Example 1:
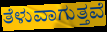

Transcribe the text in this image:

ತೆಳುವಾಗುತ್ತವೆ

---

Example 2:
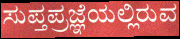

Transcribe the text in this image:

ಸುಪ್ತಪ್ರಜ್ಞೆಯಲ್ಲಿರುವ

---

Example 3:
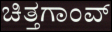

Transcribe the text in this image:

ಚಿತ್ತಗಾಂವ್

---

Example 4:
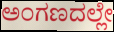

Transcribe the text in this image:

ಅಂಗಣದಲ್ಲೇ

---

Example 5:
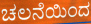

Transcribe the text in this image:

ಚಲನೆಯಿಂದ